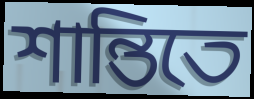
শান্তিতে